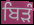
ਬਿੜੰ